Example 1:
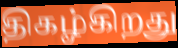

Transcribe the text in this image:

திகழ்கிறது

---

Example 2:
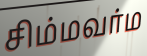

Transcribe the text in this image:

சிம்மவர்ம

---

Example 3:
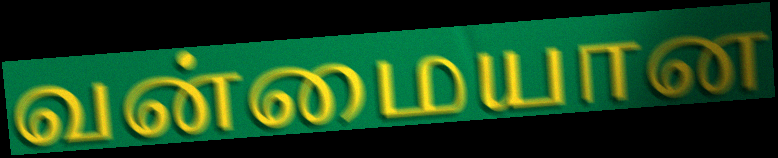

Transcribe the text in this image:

வன்மையான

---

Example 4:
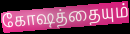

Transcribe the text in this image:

கோஷத்தையும்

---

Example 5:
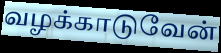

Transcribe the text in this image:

வழக்காடுவேன்